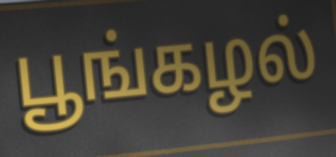
பூங்கழல்